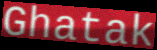
Ghatak